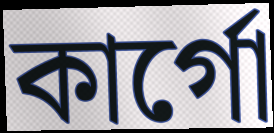
কার্গো